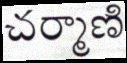
చర్మాణి